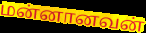
மன்னானவன்